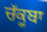
ਚੱਕੂਬਾ